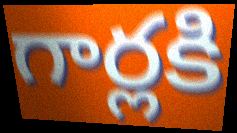
గార్లకి